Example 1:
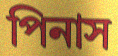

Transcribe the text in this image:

পিনাস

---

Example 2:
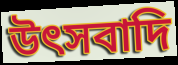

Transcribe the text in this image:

উৎসবাদি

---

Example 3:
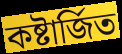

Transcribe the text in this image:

কষ্টার্জিত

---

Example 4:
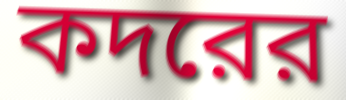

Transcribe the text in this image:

কদরের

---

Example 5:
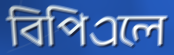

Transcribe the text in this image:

বিপিএলে